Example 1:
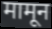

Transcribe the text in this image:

मामून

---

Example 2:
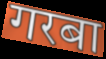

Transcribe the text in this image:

गरबा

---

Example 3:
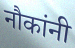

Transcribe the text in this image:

नौकांनी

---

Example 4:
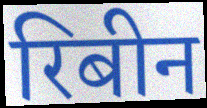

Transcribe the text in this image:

रिबीन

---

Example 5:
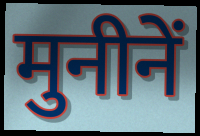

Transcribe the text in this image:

मुनीनें